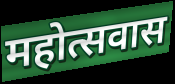
महोत्सवास